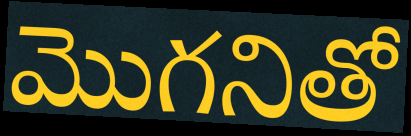
మొగనితో